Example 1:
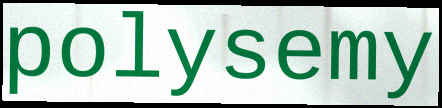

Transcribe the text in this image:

polysemy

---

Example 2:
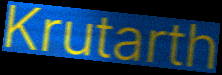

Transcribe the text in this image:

Krutarth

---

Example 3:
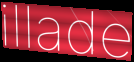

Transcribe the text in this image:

illade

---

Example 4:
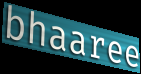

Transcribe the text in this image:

bhaaree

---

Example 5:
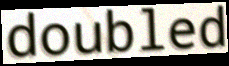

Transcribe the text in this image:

doubled